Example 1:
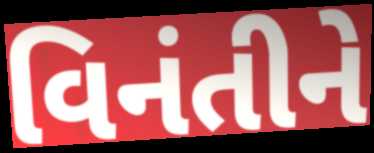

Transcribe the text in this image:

વિનંતીને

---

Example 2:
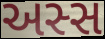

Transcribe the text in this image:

અસ્સ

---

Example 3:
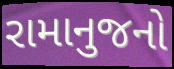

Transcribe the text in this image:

રામાનુજનો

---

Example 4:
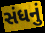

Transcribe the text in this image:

સંધનું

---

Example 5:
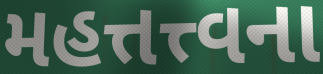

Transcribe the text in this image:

મહત્તત્ત્વના